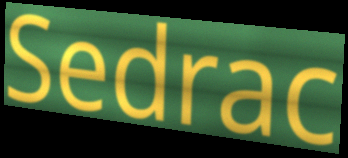
Sedrac